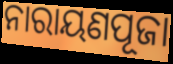
ନାରାୟଣପୂଜା